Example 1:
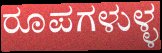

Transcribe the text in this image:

ರೂಪಗಳುಳ್ಳ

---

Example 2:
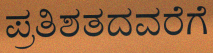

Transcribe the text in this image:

ಪ್ರತಿಶತದವರೆಗೆ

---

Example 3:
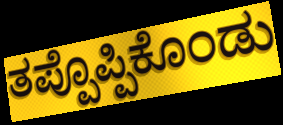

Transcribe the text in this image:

ತಪ್ಪೊಪ್ಪಿಕೊಂಡು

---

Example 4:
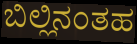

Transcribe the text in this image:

ಬಿಲ್ಲಿನಂತಹ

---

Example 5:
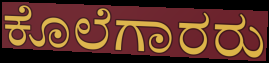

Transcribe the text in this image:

ಕೊಲೆಗಾರರು